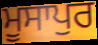
ਮੂਸਾਪੁਰ